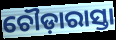
ଚୌଡ଼ାରାସ୍ତା